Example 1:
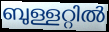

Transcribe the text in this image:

ബുള്ളറ്റിൽ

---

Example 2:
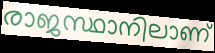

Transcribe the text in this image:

രാജസ്ഥാനിലാണ്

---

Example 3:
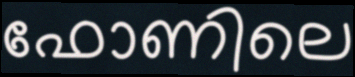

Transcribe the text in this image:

ഫോണിലെ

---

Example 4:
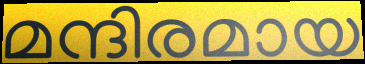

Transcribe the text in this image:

മന്ദിരമായ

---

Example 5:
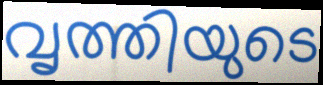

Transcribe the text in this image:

വൃത്തിയുടെ